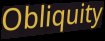
Obliquity